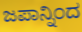
ಜಪಾನ್ನಿಂದ